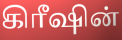
கிரீஷின்